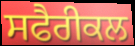
ਸਫੈਰੀਕਲ